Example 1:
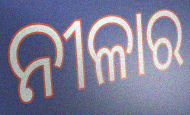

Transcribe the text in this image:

ନୀଳାର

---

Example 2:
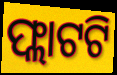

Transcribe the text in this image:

ଫ୍ଲାଟଟି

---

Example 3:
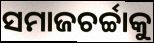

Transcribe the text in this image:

ସମାଜଚର୍ଚ୍ଚାକୁ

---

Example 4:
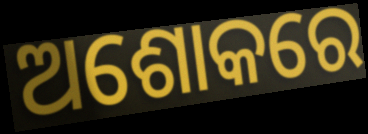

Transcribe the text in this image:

ଅଶୋକରେ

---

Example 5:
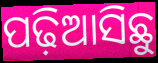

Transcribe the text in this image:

ପଢ଼ିଆସିଛୁ